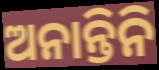
ଅନାନ୍ତିନି